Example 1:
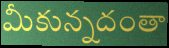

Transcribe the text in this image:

మీకున్నదంతా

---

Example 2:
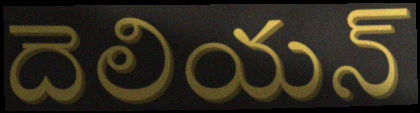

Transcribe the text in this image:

దెలియన్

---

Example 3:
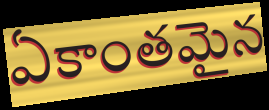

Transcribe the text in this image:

ఏకాంతమైన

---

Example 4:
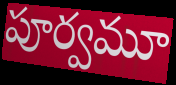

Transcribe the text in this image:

పూర్వమూ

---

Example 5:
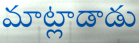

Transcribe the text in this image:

మాట్లాడాడు